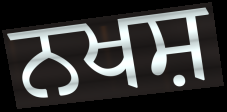
ਨਖਸ਼